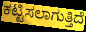
ಕಟ್ಟಿಸಲಾಗುತ್ತಿದೆ